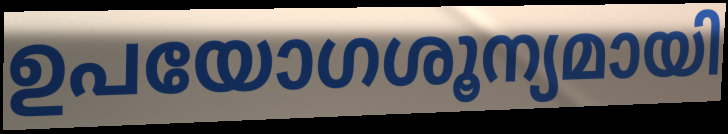
ഉപയോഗശൂന്യമായി